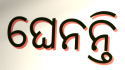
ଘେନନ୍ତି